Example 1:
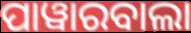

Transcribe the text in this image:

ପାୱାରବାଲା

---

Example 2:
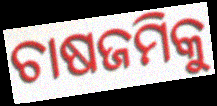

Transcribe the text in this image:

ଚାଷଜମିକୁ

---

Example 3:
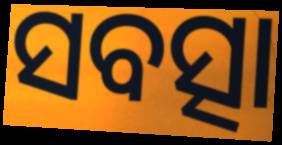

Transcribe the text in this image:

ସବତ୍ସା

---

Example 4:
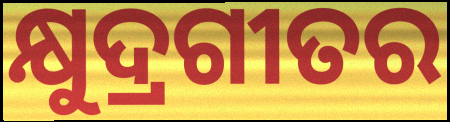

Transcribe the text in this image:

କ୍ଷୁଦ୍ରଗୀତର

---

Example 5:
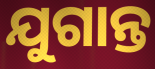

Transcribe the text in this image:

ଯୁଗାନ୍ତ